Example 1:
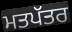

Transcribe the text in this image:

ਮਤਪੱਤਰ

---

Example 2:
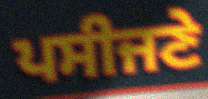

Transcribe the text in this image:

ਪਸੀਜਣੇ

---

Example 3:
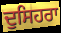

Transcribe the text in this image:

ਦੁਸਿਹਰਾ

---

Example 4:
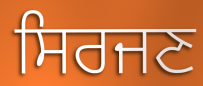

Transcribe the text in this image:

ਸਿਰਜਣ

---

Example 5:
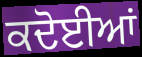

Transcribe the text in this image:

ਕਦੋਈਆਂ